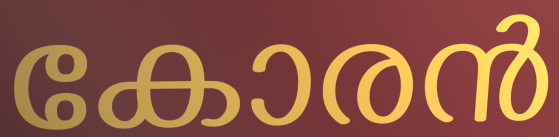
കോരൻ